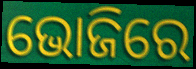
ଭୋଜିରେ